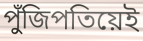
পুঁজিপতিয়েই